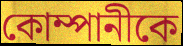
কোম্পানীকে